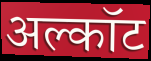
अल्कॉट